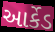
આર્કેડ